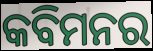
କବିମନର